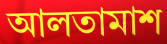
আলতামাশ